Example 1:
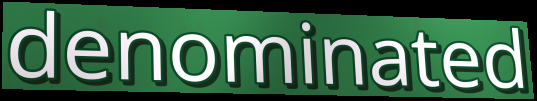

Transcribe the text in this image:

denominated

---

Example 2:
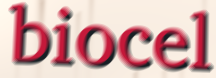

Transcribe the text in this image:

biocel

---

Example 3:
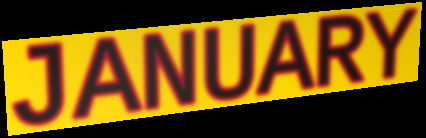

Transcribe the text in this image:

JANUARY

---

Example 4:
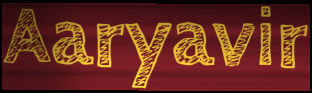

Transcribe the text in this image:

Aaryavir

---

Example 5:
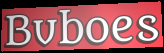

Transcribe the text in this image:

Buboes